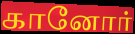
கானோர்